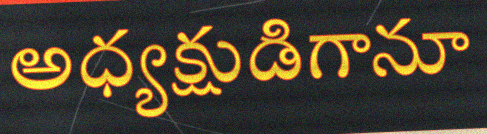
అధ్యక్షుడిగానూ